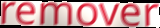
remover